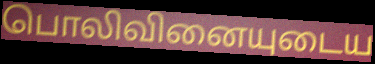
பொலிவினையுடைய